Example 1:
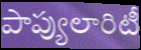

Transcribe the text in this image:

పాప్యులారిటీ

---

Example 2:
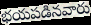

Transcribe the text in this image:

భయపడినవారు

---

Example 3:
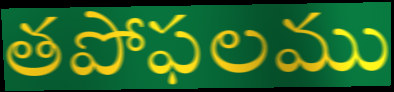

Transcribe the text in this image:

తపోఫలము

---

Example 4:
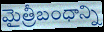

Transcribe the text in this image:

మైత్రీబంధాన్ని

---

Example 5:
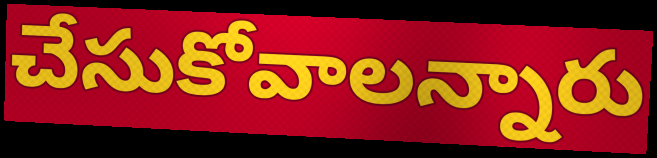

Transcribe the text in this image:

చేసుకోవాలన్నారు